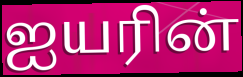
ஐயரின்